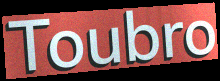
Toubro